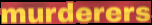
murderers